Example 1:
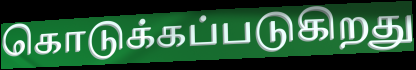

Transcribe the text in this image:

கொடுக்கப்படுகிறது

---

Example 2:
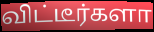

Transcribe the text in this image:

விட்டீர்களா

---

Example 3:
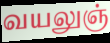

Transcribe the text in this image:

வயலுஞ்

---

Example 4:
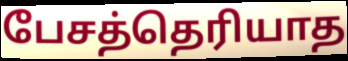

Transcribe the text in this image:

பேசத்தெரியாத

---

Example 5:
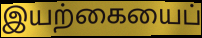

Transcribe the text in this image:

இயற்கையைப்